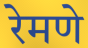
रेमणे